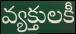
వ్యక్తులకీ